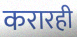
करारही